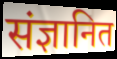
संज्ञानित